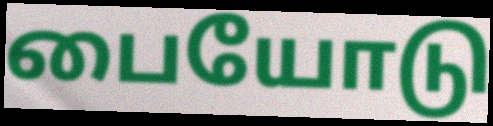
பையோடு